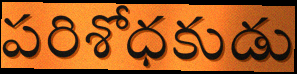
పరిశోధకుడు